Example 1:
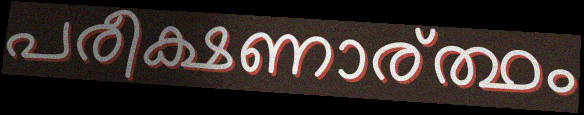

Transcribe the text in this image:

പരീക്ഷണാര്ത്ഥം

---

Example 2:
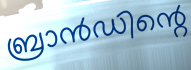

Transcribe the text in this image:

ബ്രാൻഡിന്റെ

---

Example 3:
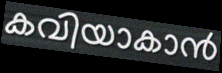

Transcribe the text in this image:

കവിയാകാൻ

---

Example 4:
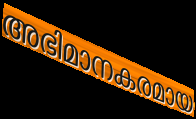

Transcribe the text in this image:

അഭിമാനകരമായ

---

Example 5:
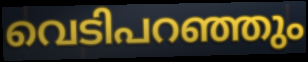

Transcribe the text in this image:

വെടിപറഞ്ഞും